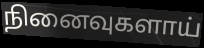
நினைவுகளாய்